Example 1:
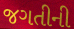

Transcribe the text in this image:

જગતીની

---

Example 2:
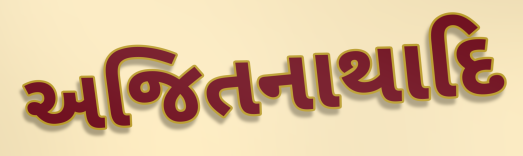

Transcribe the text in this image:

અજિતનાથાદિ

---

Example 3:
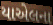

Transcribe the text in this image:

યાએલના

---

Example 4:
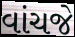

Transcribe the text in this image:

વાંચજે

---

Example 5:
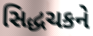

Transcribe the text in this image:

સિદ્ધચકને